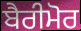
ਬੈਰੀਮੋਰ